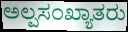
ಅಲ್ಪಸಂಖ್ಯಾತರು